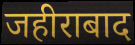
जहीराबाद